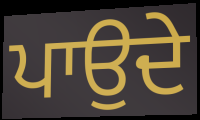
ਪਾਉਦੇ